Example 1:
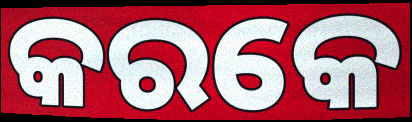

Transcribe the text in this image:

କରକେ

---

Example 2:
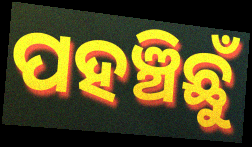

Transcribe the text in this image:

ପହଞ୍ଚିଛୁଁ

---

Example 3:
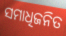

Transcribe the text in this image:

ସମାଧିଜନିତ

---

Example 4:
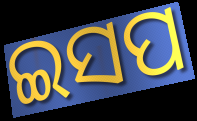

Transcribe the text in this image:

ଇସପ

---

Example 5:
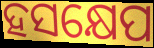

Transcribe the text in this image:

ହସକ୍ଷେପ